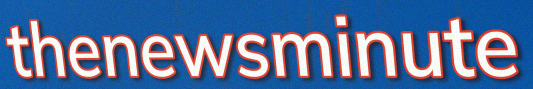
thenewsminute